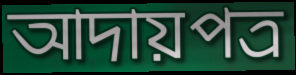
আদায়পত্র